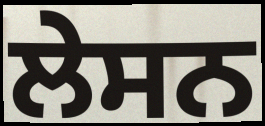
ਲੇਸਨ